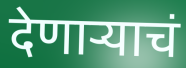
देणाऱ्याचं